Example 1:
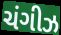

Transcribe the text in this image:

ચંગીઝ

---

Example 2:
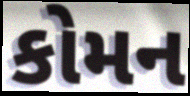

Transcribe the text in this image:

કોમન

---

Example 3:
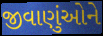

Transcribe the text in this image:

જીવાણુંઓને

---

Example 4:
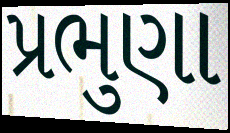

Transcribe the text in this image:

પ્રભુણા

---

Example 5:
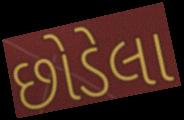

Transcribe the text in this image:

છોડેલા